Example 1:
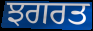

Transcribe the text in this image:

ਝਗਰਤ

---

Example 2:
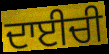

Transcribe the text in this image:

ਦਾਈਚੀ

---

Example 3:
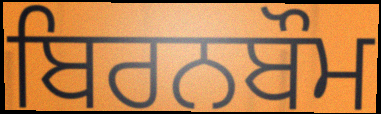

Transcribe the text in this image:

ਬਿਰਨਬੌਮ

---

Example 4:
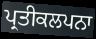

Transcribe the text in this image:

ਪ੍ਰਤੀਕਲਪਨਾ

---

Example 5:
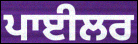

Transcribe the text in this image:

ਪਾਈਲਰ